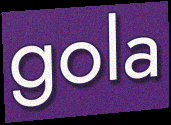
gola